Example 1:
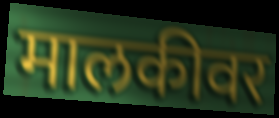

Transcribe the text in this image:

मालकीवर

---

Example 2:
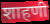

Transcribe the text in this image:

शाहणी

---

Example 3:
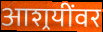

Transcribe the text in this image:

आश्रयींवर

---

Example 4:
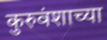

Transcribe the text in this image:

कुरुवंशाच्या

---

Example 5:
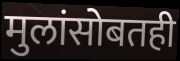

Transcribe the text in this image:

मुलांसोबतही